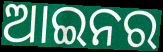
ଆଇନର